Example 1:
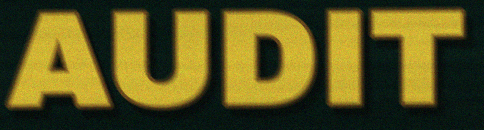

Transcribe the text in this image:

AUDIT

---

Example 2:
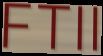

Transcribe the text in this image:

FTII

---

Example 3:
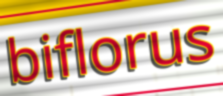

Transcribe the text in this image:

biflorus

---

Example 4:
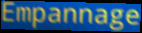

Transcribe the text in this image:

Empannage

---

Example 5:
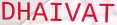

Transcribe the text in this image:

DHAIVAT